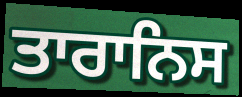
ਤਾਰਾਨਿਸ